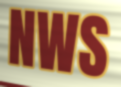
NWS